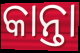
କାନ୍ତା